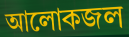
আলোকজল